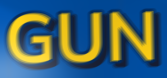
GUN